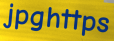
jpghttps